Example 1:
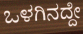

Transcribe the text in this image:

ಒಳಗಿನದ್ದೇ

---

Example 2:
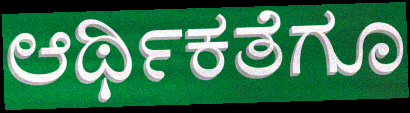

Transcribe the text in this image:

ಆರ್ಥಿಕತೆಗೂ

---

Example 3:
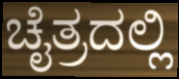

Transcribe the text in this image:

ಚೈತ್ರದಲ್ಲಿ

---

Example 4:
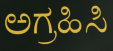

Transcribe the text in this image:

ಅಗ್ರಹಿಸಿ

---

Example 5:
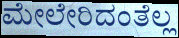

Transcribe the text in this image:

ಮೇಲೇರಿದಂತೆಲ್ಲ